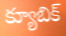
క్యూబిక్